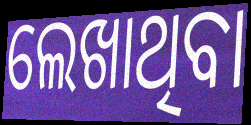
ଲେଖାଥିବା